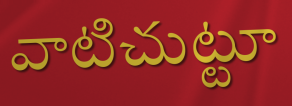
వాటిచుట్టూ